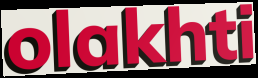
olakhti